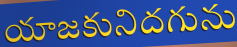
యాజకునిదగును